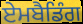
ਏਮਬੈਡਿੰਗ